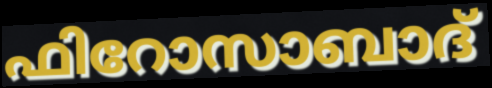
ഫിറോസാബാദ്